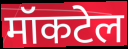
मॉकटेल